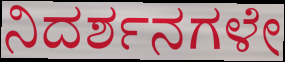
ನಿದರ್ಶನಗಳೇ